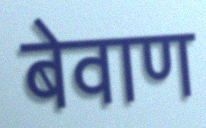
बेवाण